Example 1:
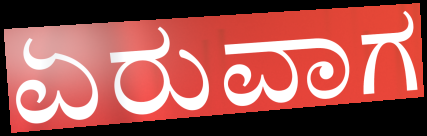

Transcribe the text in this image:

ಏರುವಾಗ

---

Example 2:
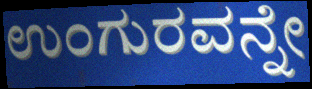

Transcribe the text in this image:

ಉಂಗುರವನ್ನೇ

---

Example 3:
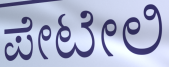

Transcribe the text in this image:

ಪೇಟೇಲಿ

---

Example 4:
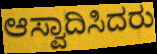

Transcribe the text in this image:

ಆಸ್ವಾದಿಸಿದರು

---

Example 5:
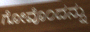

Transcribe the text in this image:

ಗೋವೊಂದನ್ನು